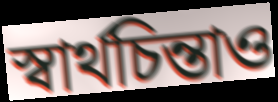
স্বার্থচিন্তাও